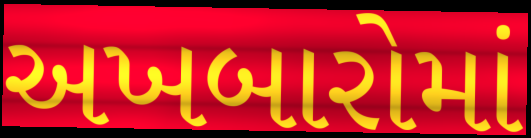
અખબારોમાં